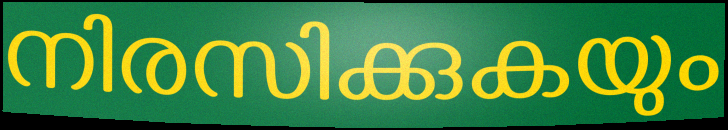
നിരസിക്കുകയും